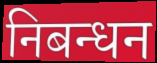
निबन्धन